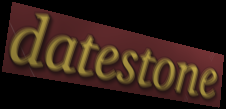
datestone